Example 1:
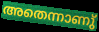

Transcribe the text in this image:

അതെന്നാണു്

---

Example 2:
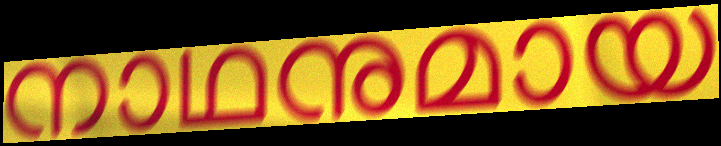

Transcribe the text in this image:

നാഥനുമായ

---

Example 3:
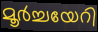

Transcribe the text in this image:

മൂർച്ചയേറി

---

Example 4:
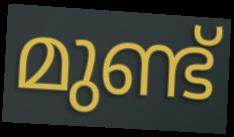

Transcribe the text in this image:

മുണ്ട്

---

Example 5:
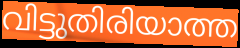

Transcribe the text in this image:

വിട്ടുതിരിയാത്ത